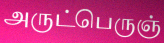
அருட்பெருஞ்